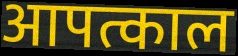
आपत्काल